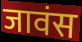
जावंस